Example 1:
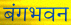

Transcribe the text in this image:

बंगभवन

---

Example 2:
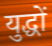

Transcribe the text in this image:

युद्धों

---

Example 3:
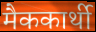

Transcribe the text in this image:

मैककार्थी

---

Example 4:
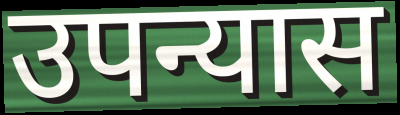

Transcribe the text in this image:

उपन्यास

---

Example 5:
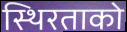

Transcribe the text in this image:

स्थिरताको